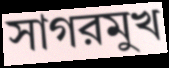
সাগরমুখ